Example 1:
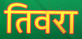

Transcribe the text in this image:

तिवरा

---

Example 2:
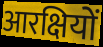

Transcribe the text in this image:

आरक्षियों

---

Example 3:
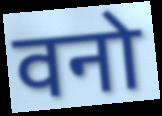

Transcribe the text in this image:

वनो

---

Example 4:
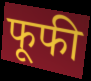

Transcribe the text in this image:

फूफी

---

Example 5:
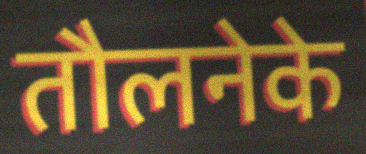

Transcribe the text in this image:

तौलनेके